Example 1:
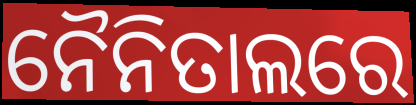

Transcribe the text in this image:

ନୈନିତାଲରେ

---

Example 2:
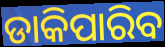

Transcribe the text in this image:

ଡାକିପାରିବ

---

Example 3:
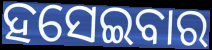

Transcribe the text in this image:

ହସେଇବାର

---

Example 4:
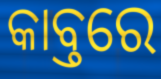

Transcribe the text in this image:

କାବ୍ତରେ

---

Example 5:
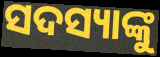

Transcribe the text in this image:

ସଦସ୍ୟାଙ୍କୁ